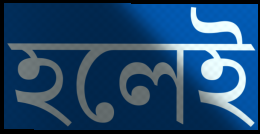
হলেই